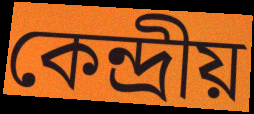
কেন্দ্রীয়